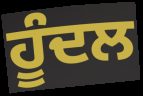
ਹੂੰਦਲ